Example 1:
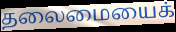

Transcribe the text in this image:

தலைமையைக்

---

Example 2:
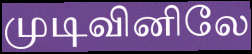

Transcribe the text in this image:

முடிவினிலே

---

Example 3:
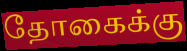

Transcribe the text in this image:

தோகைக்கு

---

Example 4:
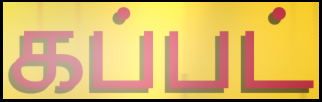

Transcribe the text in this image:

கப்பட்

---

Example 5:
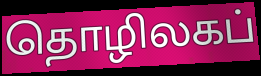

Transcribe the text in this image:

தொழிலகப்